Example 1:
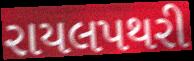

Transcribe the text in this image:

રાયલપથરી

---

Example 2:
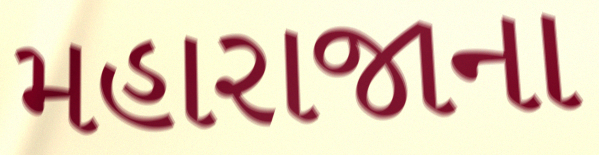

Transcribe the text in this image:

મહારાજાના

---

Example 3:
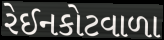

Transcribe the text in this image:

રેઈનકોટવાળા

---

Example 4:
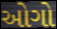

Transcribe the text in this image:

ઓગો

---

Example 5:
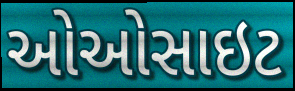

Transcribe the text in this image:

ઓઓસાઇટ